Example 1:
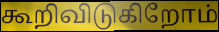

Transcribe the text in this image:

கூறிவிடுகிறோம்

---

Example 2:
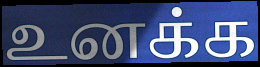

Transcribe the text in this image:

உனக்க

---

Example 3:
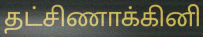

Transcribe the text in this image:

தட்சிணாக்கினி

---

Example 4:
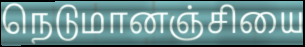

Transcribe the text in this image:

நெடுமானஞ்சியை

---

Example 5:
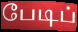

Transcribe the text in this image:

பேடிப்